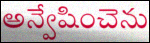
అన్వేషించెను